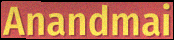
Anandmai